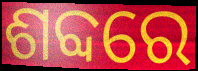
ଶବ୍ଦରେ